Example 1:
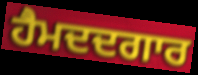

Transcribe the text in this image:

ਹੈਮਦਦਗਾਰ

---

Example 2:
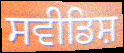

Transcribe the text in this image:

ਸਵੀਡਿਸ਼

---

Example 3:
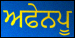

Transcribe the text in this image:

ਅਫੇਨਪੂ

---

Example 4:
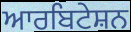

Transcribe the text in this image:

ਆਰਬਿਟੇਸ਼ਨ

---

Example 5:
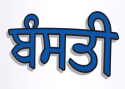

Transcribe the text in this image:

ਬੰਸਤੀ